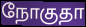
நோகுதா